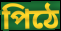
পিঠে